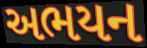
અભયન